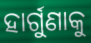
ହାର୍ଗୁଣାକୁ